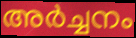
അർച്ചനം